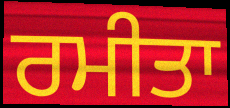
ਰਮੀਤਾ